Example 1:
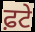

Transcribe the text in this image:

ਫ਼ਟੇ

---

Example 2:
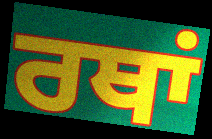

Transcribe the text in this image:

ਰਥਾਂ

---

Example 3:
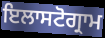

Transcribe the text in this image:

ਇਲਾਸਟੋਗ੍ਰਾਮ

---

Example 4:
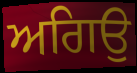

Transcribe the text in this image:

ਅਗਿਉ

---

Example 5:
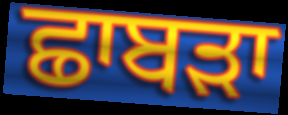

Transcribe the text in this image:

ਛਾਬੜਾ